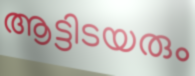
ആട്ടിടയരും